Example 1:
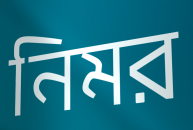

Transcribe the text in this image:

নিমর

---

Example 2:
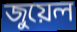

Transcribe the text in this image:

জুয়েল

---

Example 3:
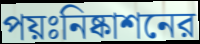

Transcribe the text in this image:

পয়ঃনিষ্কাশনের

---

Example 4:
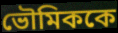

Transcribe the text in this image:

ভৌমিককে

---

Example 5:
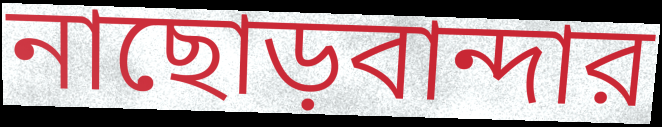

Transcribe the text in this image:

নাছোড়বান্দার